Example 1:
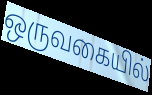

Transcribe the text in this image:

ஒருவகையில்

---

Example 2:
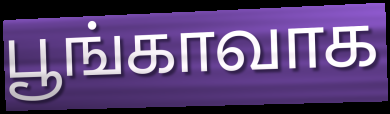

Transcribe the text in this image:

பூங்காவாக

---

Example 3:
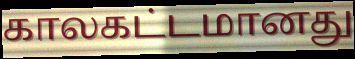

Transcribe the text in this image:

காலகட்டமானது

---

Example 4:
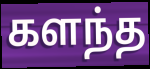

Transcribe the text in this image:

களந்த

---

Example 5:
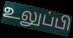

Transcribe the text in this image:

உலுப்பி